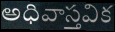
అధివాస్తవిక